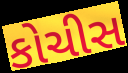
કોચીસ